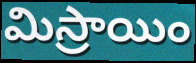
మిస్రాయిం